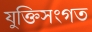
যুক্তিসংগত